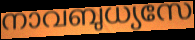
നാവബുധ്യസേ